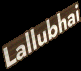
Lallubhai